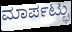
ಮಾರ್ಪಟ್ಟು